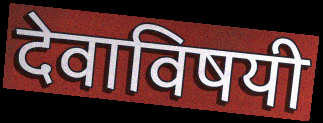
देवाविषयी